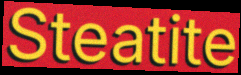
Steatite